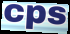
cps